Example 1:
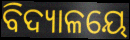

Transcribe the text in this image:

ବିଦ୍ୟାଳୟେ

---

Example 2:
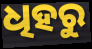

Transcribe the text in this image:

ଧିହରୁ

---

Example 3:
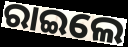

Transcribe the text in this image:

ରାଇଲେ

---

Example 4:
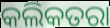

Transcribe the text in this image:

କଲିକତରା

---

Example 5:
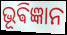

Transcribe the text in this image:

ଭୂଵିଜ୍ଞାନ